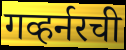
गव्हर्नरची